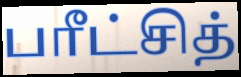
பரீட்சித்